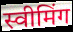
स्‍वीमिंग